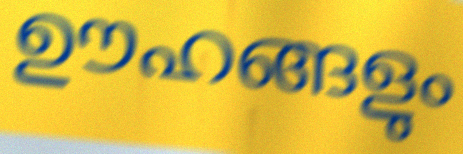
ഊഹങ്ങളും